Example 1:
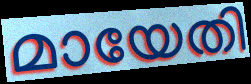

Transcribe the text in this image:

മായേതി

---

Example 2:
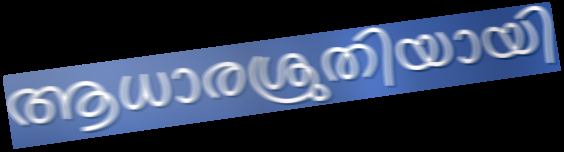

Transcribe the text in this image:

ആധാരശ്രുതിയായി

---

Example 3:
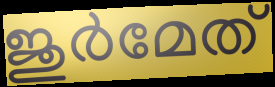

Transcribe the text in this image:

ജുർമേത്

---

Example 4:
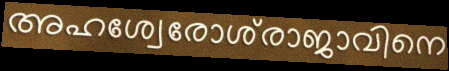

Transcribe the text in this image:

അഹശ്വേരോശ്‌രാജാവിനെ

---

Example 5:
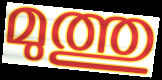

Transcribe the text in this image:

മുത്തു